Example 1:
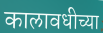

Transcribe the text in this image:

कालावधीच्या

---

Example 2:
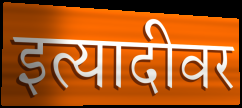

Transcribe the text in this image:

इत्यादीवर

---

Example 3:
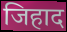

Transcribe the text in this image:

जिहाद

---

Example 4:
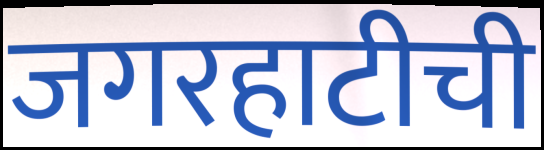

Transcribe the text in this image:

जगरहाटीची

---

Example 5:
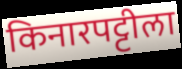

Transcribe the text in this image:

किनारपट्टीला